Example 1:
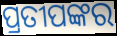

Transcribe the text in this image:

ପ୍ରତୀପଙ୍କର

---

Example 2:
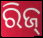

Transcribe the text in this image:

ରିଜ୍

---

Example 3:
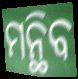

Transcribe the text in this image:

ମନ୍ଥିବ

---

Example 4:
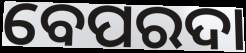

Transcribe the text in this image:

ବେପରଦା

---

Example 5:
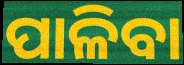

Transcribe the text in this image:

ପାଳିବା